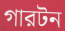
গারটন